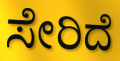
ಸೇರಿದೆ